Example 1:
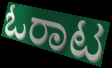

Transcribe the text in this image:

ಓರಾಟ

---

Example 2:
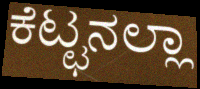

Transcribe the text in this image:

ಕೆಟ್ಟನಲ್ಲಾ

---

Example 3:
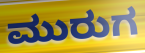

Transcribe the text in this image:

ಮುರುಗ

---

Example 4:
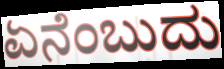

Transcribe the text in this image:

ಏನೆಂಬುದು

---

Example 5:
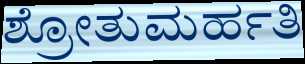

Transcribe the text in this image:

ಶ್ರೋತುಮರ್ಹತಿ